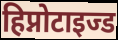
हिप्नोटाइज्ड